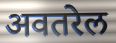
अवतरेल